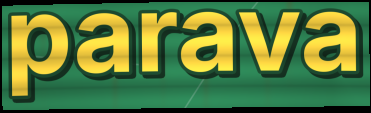
parava